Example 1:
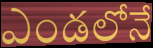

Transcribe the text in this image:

ఎండలోనే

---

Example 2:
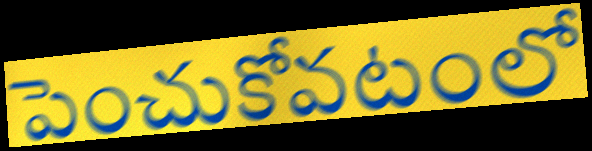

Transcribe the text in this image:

పెంచుకోవటంలో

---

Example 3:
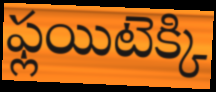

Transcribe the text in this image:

ఫ్లయిటెక్కి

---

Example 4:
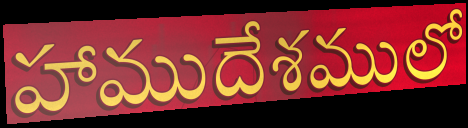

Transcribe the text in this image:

హాముదేశములో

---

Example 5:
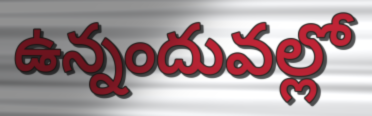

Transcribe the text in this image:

ఉన్నందువల్లో